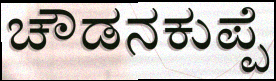
ಚೌಡನಕುಪ್ಪೆ